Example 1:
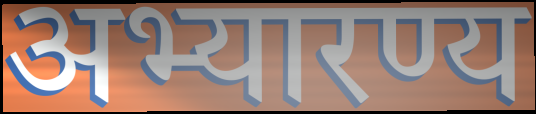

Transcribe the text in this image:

अभ्यारण्य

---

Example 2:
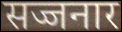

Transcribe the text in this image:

सज्जनार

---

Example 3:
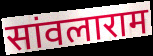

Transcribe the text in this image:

सांवलाराम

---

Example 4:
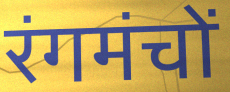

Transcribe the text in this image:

रंगमंचों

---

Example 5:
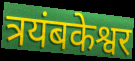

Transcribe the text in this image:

त्रयंबकेश्वर